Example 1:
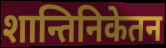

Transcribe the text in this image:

शान्तिनिकेतन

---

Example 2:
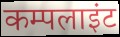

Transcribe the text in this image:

कम्पलाइंट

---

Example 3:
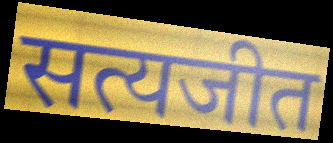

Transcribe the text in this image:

सत्यजीत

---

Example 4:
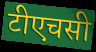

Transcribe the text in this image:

टीएचसी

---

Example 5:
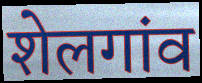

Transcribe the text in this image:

शेलगांव